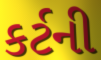
કર્ટની